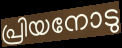
പ്രിയനോടു